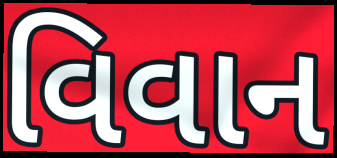
વિવાન